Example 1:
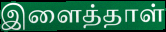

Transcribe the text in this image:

இளைத்தாள்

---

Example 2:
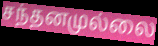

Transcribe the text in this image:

சந்தனமுல்லை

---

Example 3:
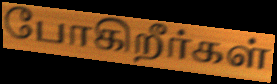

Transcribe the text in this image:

போகிறீர்கள்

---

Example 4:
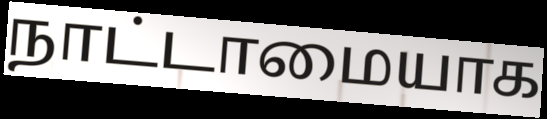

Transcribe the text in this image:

நாட்டாமையாக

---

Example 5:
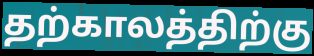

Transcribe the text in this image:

தற்காலத்திற்கு